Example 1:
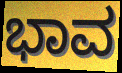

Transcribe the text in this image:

ಭಾವ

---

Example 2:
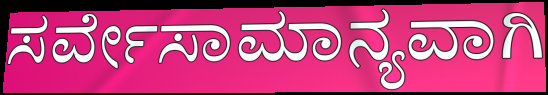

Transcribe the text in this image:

ಸರ್ವೇಸಾಮಾನ್ಯವಾಗಿ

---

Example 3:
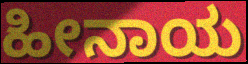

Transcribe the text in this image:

ಹೀನಾಯ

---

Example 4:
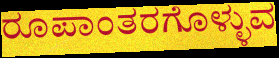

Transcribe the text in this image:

ರೂಪಾಂತರಗೊಳ್ಳುವ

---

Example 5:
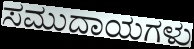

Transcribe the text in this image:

ಸಮುದಾಯಗಳು